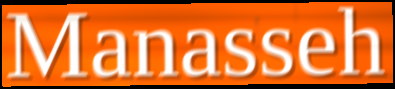
Manasseh